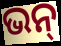
ଭନ୍